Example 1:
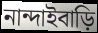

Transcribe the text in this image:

নান্দাইবাড়ি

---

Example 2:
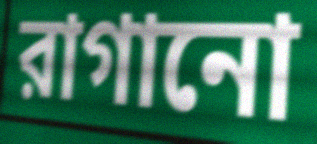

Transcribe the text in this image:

রাগানো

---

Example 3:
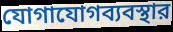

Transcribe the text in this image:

যোগাযোগব্যবস্থার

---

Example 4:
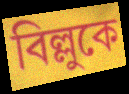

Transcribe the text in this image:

বিল্লুকে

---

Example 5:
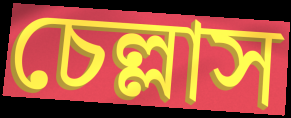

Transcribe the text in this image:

চেল্লাস